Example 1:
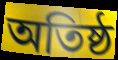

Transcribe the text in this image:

অতিষ্ঠ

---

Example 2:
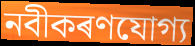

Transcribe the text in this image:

নবীকৰণযোগ্য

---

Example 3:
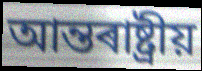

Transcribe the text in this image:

আন্তৰাষ্ট্ৰীয়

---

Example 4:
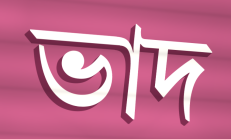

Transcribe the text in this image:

ভাদ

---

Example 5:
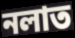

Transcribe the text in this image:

নলাত